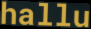
hallu